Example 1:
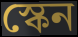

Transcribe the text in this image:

স্কেন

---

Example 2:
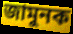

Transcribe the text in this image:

জামুনক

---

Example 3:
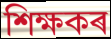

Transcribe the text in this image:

শিক্ষকৰ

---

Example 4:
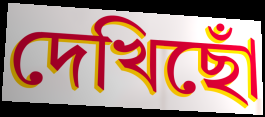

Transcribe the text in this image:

দেখিছোঁ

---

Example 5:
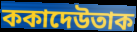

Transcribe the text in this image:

ককাদেউতাক